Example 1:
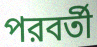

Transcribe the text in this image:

পরবর্তী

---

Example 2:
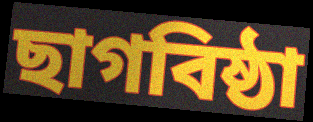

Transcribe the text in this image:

ছাগবিষ্ঠা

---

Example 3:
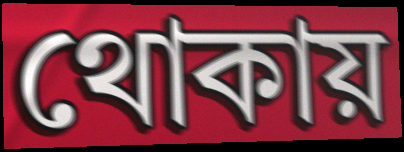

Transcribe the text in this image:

থোকায়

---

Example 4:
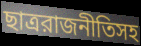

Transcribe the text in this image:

ছাত্ররাজনীতিসহ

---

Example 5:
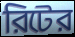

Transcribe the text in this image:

রিটের